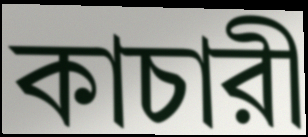
কাচারী